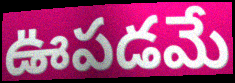
ఊపడమే